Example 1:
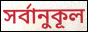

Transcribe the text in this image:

সর্বানুকূল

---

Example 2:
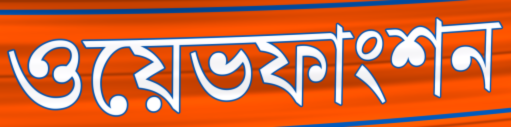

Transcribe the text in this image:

ওয়েভফাংশন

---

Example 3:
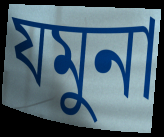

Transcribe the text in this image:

যমুনা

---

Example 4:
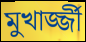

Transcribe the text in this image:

মুখার্জ্জী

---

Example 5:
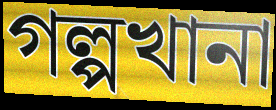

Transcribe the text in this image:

গল্পখানা